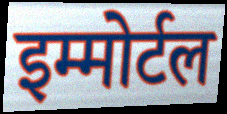
इम्मोर्टल